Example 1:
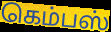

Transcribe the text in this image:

கெம்பஸ்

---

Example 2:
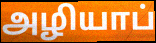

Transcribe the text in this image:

அழியாப்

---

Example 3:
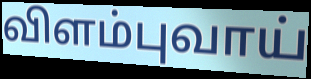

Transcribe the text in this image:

விளம்புவாய்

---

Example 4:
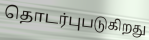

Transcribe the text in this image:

தொடர்புபடுகிறது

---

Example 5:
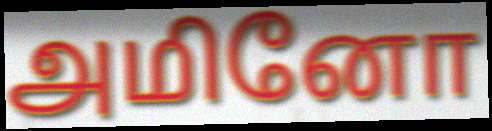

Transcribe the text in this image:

அமினோ